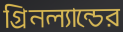
গ্রিনল্যান্ডের